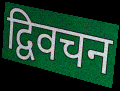
द्विवचन